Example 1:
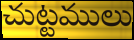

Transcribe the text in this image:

చుట్టములు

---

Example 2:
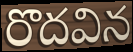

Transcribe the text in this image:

రొదవిన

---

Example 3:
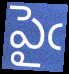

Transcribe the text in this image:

పైఁ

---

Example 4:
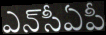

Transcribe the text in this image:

ఎన్‌సీఏపీ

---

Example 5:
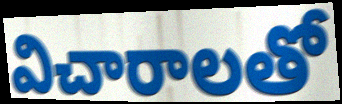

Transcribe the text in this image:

విచారాలతో